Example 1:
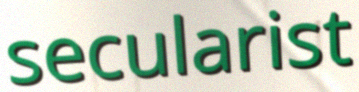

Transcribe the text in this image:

secularist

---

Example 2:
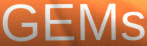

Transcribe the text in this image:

GEMs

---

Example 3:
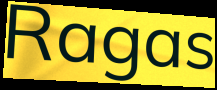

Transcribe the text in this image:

Ragas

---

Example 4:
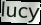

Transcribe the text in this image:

lucy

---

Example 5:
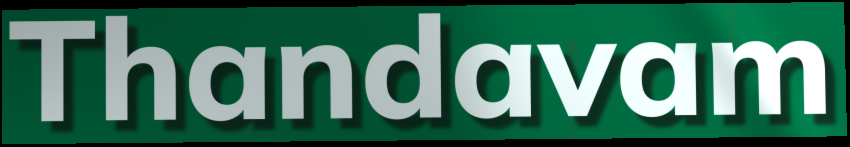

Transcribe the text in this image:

Thandavam